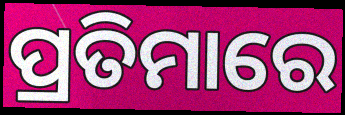
ପ୍ରତିମାରେ